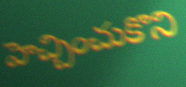
హెచ్చించుకొని